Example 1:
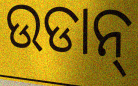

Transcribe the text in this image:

ଉଡାନ୍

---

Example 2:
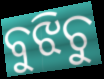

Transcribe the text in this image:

ବୁଝିଚୁ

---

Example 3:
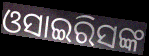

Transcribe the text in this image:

ଓସାଇରିସଙ୍କ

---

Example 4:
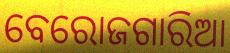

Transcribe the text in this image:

ବେରୋଜଗାରିଆ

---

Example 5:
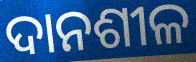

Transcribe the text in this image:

ଦାନଶୀଳ